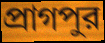
প্রাগপুর